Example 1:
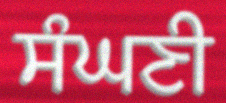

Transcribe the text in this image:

ਸੰਘਣੀ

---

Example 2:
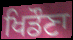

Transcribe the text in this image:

ਖਿਡੌਣਾ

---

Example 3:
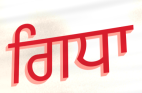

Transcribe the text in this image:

ਗਿਧਾ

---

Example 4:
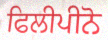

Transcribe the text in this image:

ਫਿਲੀਪੀਨੋ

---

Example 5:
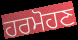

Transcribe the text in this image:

ਹਰਮੋਹਣ